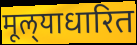
मूल्याधारित